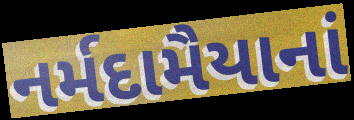
નર્મદામૈયાનાં